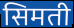
सिमती